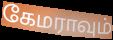
கேமராவும்